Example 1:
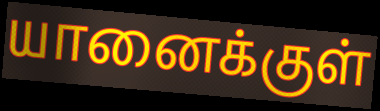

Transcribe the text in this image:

யானைக்குள்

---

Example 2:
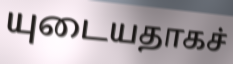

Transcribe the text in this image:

யுடையதாகச்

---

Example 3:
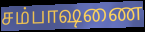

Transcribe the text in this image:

சம்பாஷணை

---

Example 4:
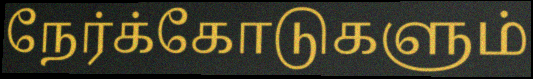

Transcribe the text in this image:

நேர்க்கோடுகளும்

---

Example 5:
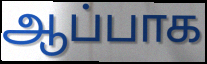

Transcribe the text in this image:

ஆப்பாக